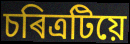
চৰিত্ৰটিয়ে